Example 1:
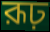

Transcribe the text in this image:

রূঢ়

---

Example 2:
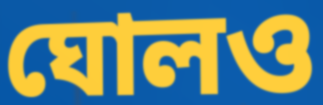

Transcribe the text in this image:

ঘোলও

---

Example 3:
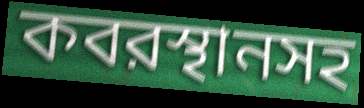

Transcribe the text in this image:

কবরস্থানসহ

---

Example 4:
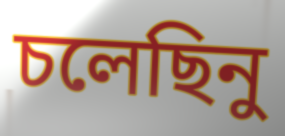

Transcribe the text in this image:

চলেছিনু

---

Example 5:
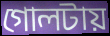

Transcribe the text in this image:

গোলটায়